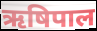
ऋषिपाल